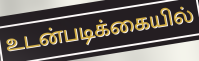
உடன்படிக்கையில்